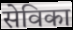
सेविका